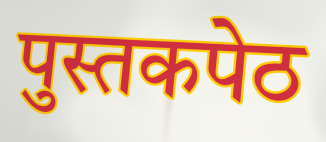
पुस्तकपेठ